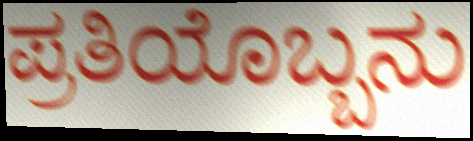
ಪ್ರತಿಯೊಬ್ಬನು